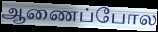
ஆணைப்போல